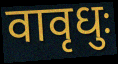
वावृधुः